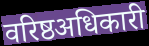
वरिष्ठअधिकारी